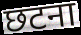
छटना